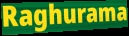
Raghurama